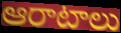
ఆరాటాలు